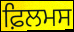
ਫ਼ਿਲਮਸ